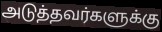
அடுத்தவர்களுக்கு